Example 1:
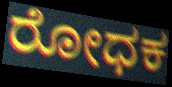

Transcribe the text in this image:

ರೋಧಕ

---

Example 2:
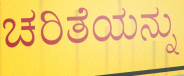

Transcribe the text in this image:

ಚರಿತೆಯನ್ನು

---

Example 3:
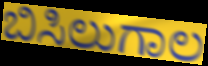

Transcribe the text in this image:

ಬಿಸಿಲುಗಾಲ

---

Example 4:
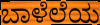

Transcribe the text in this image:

ಬಾಳೆಲೆಯ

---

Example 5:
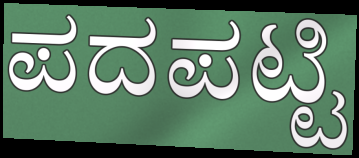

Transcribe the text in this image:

ಪದಪಟ್ಟಿ